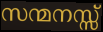
സന്മനസ്സ്